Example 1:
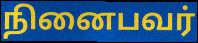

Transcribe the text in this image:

நினைபவர்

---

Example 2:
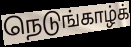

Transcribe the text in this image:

நெடுங்காழ்க்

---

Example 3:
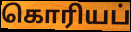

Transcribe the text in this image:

கொரியப்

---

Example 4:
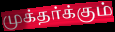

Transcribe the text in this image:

முக்தர்க்கும்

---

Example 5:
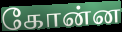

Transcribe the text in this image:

கோன்ன